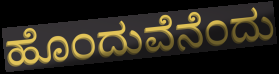
ಹೊಂದುವೆನೆಂದು